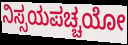
ನಿಸ್ಸಯಪಚ್ಚಯೋ